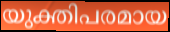
യുക്തിപരമായ